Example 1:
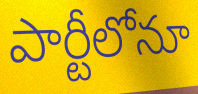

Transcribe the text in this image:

పార్టీలోనూ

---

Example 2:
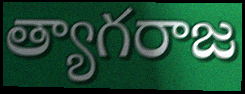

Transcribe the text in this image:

త్యాగరాజ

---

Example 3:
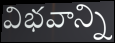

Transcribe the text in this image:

విభవాన్ని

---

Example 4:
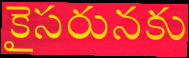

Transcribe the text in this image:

కైసరునకు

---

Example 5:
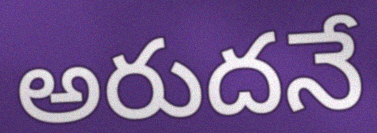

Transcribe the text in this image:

అరుదనే